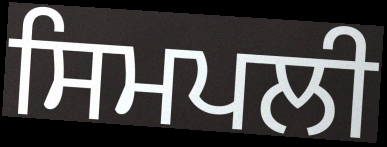
ਸਿਮਪਲੀ